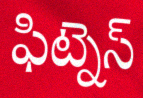
ఫిట్నెస్